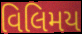
વિલિમય